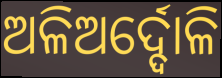
ଅଳିଅର୍ଦ୍ଦୋଳି